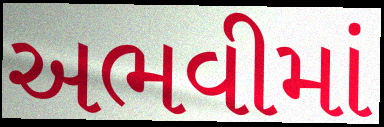
અભવીમાં